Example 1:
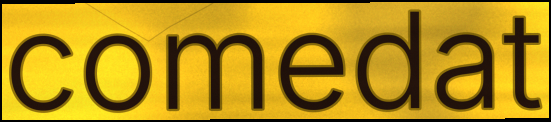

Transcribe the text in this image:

comedat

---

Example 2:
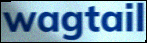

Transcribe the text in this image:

wagtail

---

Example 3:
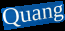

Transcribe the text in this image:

Quang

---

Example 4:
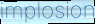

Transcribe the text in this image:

implosion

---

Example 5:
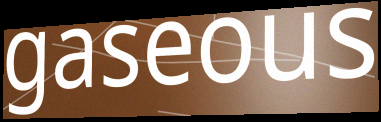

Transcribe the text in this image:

gaseous